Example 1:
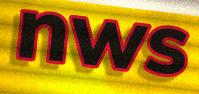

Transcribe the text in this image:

nws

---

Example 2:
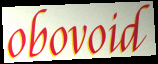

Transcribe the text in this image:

obovoid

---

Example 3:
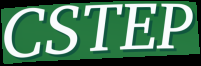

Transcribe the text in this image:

CSTEP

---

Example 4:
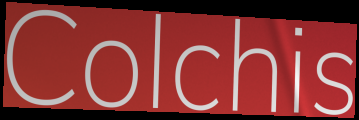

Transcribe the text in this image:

Colchis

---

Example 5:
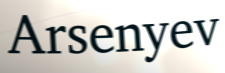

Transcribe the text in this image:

Arsenyev